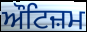
ਔਟਿਜ਼ਮ